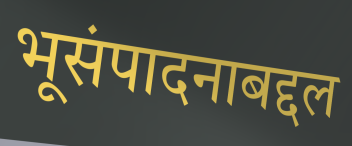
भूसंपादनाबद्दल